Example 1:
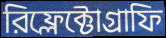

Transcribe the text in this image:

রিফ্লেক্টোগ্রাফি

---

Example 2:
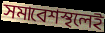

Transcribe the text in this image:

সমাবেশস্থলেই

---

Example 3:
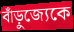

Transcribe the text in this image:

বাঁড়ুজ্যেকে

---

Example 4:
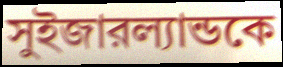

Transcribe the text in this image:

সুইজারল্যান্ডকে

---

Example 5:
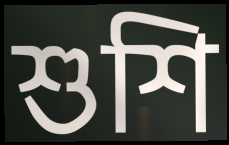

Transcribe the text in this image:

শুশি